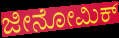
ಜೀನೋಮಿಕ್